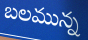
బలమున్న